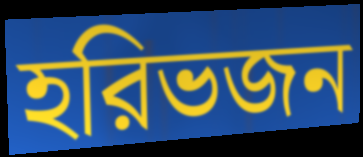
হরিভজন